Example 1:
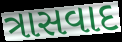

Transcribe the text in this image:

ત્રાસવાદ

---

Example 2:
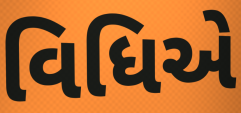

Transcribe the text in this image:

વિધિએ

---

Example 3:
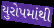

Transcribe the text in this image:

યુરોપમાંથી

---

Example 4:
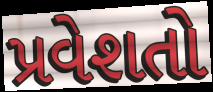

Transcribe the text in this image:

પ્રવેશતો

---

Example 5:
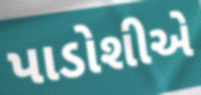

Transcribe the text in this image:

પાડોશીએ